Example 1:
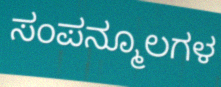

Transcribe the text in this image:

ಸಂಪನ್ಮೂಲಗಳ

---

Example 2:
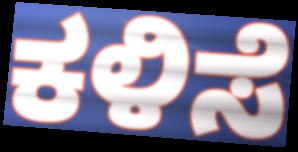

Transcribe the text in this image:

ಕಳಿಸೆ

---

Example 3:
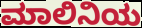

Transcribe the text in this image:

ಮಾಲಿನಿಯ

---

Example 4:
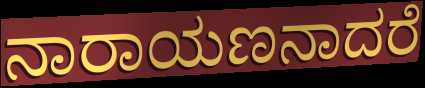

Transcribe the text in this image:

ನಾರಾಯಣನಾದರೆ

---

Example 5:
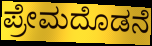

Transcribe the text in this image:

ಪ್ರೇಮದೊಡನೆ